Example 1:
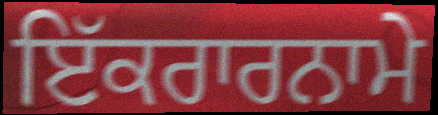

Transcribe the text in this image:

ਇੱਕਰਾਰਨਾਮੇ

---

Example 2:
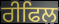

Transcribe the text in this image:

ਰੀਫਿਲ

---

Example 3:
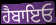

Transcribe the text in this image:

ਹੈਬਾਇਓ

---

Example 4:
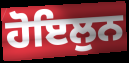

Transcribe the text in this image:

ਹੋਇਲੁਨ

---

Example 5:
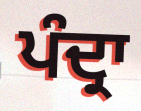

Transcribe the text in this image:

ਪੰਦ੍ਰਾ